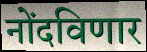
नोंदविणार